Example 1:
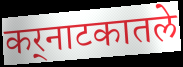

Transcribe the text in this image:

कर्नाटकातले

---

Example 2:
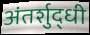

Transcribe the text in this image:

अंतर्शुद्धी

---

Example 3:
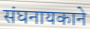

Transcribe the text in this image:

संघनायकाने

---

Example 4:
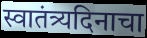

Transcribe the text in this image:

स्वातंत्र्यदिनाचा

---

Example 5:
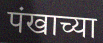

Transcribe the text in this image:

पंखाच्या